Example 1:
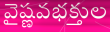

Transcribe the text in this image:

వైష్ణవభక్తుల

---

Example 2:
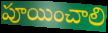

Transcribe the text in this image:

పూయించాలి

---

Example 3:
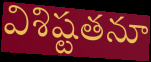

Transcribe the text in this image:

విశిష్టతనూ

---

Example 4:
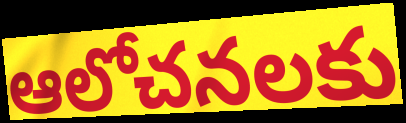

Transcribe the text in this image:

ఆలోచనలకు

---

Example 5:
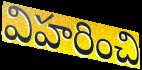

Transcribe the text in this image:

విహరించి